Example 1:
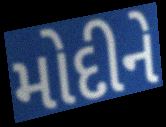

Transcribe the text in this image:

મોદીને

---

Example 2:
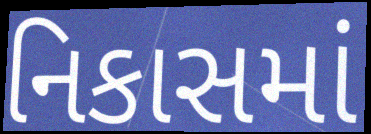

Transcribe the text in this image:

નિકાસમાં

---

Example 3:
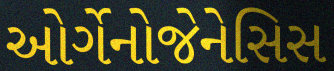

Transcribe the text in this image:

ઓર્ગેનોજેનેસિસ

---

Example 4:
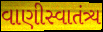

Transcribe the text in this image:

વાણીસ્વાતંત્ર્ય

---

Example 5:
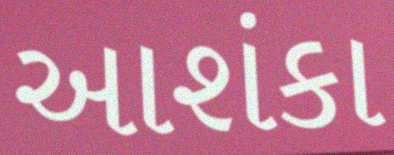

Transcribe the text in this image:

આશંકા